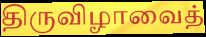
திருவிழாவைத்